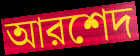
আরশেদ